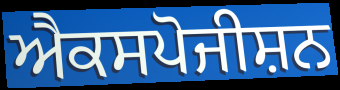
ਐਕਸਪੋਜੀਸ਼ਨ